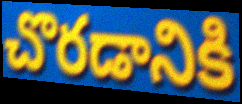
చొరడానికి